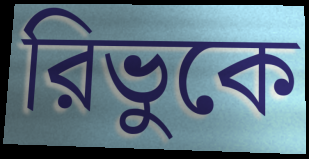
রিভুকে